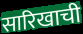
सारिखाची